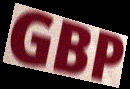
GBP